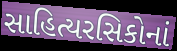
સાહિત્યરસિકોનાં